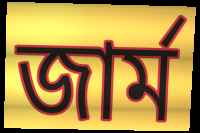
জার্ম